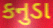
કનુડા